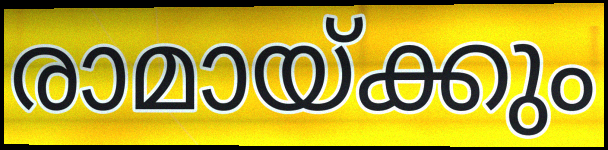
രാമായ്ക്കും